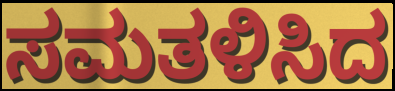
ಸಮತಳಿಸಿದ